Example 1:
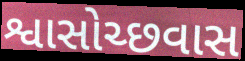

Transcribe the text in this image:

શ્વાસોચ્છવાસ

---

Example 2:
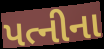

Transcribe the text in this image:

પત્નીના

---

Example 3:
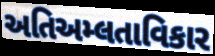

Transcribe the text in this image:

અતિઅમ્લતાવિકાર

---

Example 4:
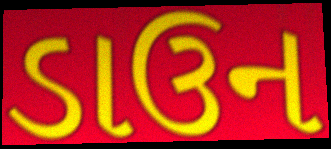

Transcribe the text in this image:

ડાઉન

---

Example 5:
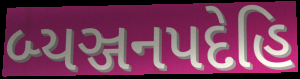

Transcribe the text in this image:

બ્યઞ્જનપદેહિ